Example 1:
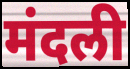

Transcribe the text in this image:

मंदली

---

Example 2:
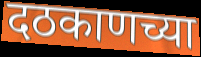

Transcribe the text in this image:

दठकाणच्या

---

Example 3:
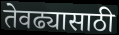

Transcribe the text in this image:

तेवढ्यासाठी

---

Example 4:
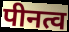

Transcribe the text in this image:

पीनत्व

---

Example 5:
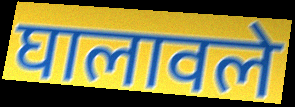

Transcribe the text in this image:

घालावले